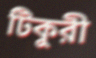
টিকুরী